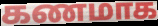
கணமாக